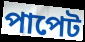
পাপেট